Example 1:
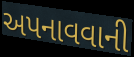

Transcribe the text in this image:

અપનાવવાની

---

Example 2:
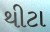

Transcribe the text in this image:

થીટા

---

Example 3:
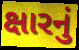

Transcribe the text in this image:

ક્ષારનું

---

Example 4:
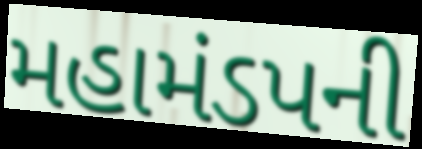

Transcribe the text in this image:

મહામંડપની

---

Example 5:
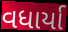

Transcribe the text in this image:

વધાર્યા